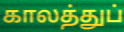
காலத்துப்